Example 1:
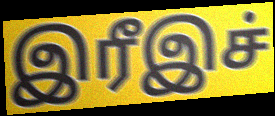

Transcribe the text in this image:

இரீஇச்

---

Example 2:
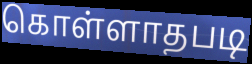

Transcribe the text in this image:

கொள்ளாதபடி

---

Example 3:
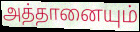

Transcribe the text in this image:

அத்தானையும்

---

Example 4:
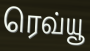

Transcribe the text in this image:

ரெவ்யூ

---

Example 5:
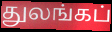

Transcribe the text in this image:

துலங்கப்